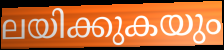
ലയിക്കുകയും